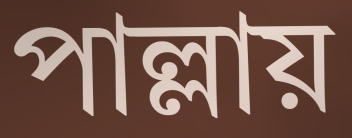
পাল্লায়